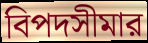
বিপদসীমার